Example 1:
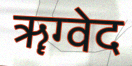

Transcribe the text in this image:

ॠग्वेद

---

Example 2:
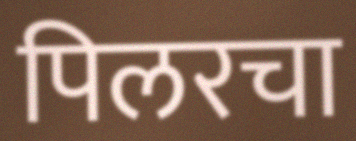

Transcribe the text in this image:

पिलरचा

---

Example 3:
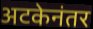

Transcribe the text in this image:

अटकेनंतर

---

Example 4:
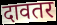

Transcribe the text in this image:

दावतर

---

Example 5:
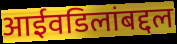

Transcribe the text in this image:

आईवडिलांबद्दल